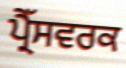
ਪ੍ਰੈੱਸਵਰਕ